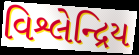
વિશ્લેન્દ્રિય